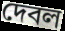
দেবল